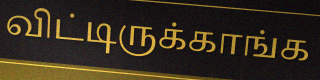
விட்டிருக்காங்க